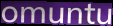
omuntu